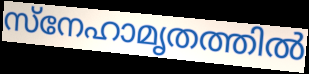
സ്നേഹാമൃതത്തിൽ